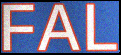
FAL